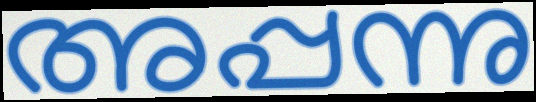
അപ്പന്നു